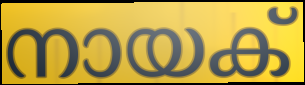
നായക്